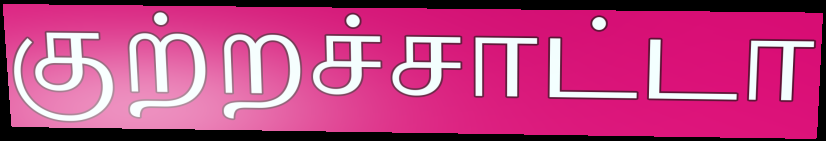
குற்றச்சாட்டா